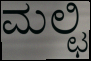
ಮಲ್ಟಿ